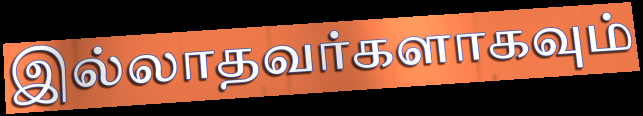
இல்லாதவர்களாகவும்